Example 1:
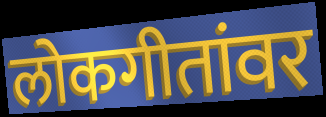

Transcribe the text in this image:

लोकगीतांवर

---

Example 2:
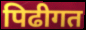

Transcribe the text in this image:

पिढीगत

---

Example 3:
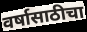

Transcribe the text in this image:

वर्षासाठीचा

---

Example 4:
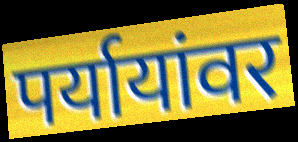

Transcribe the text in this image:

पर्यायांवर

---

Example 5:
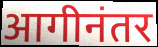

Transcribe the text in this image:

आगीनंतर